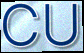
CU